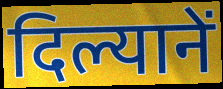
दिल्यानें